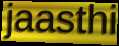
jaasthi